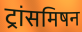
ट्रांसमिषन